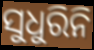
ସୁଧୁରିନି